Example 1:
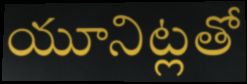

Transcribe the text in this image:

యూనిట్లతో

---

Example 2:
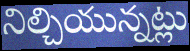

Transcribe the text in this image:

నిల్చియున్నట్లు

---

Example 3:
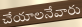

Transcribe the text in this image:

చేయాలనేవారు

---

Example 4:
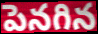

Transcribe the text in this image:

పెనగిన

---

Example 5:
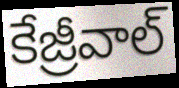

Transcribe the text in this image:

కేజ్రీవాల్